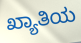
ಖ್ಯಾತಿಯ